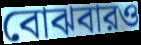
বোঝবারও